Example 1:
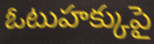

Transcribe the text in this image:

ఓటుహక్కుపై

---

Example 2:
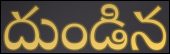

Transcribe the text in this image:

దుండిన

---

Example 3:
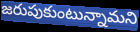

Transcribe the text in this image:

జరుపుకుంటున్నామని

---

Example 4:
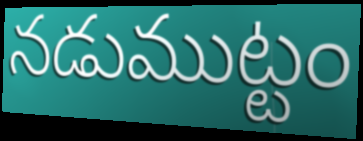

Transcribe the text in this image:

నడుముట్టం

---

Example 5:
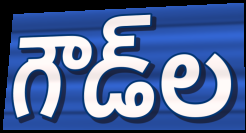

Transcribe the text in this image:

గౌడ్‌ల